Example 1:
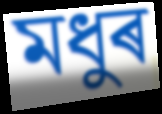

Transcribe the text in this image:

মধুৰ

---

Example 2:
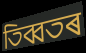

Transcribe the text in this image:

তিব্বতৰ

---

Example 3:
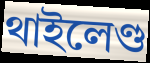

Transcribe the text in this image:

থাইলেণ্ড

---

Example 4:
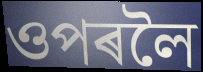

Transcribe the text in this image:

ওপৰলৈ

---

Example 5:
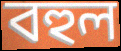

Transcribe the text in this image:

বহুল